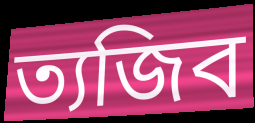
ত্যজিব